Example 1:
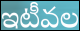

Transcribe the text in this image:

ఇటీవల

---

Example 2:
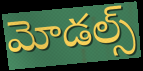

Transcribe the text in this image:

మోడల్స్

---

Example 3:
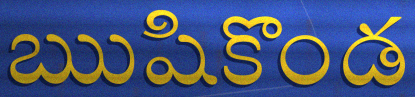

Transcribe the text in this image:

ఋషికొండ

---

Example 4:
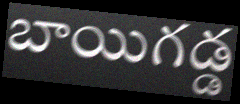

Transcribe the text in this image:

బాయిగడ్డ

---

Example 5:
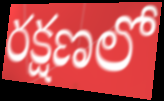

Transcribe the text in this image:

రక్షణలో